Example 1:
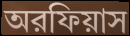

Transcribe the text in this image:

অরফিয়াস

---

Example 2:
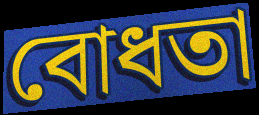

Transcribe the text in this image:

বোধতা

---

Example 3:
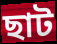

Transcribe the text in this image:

ছাট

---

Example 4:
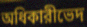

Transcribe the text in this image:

অধিকারীভেদ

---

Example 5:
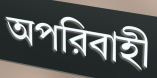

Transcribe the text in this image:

অপরিবাহী